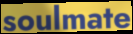
soulmate